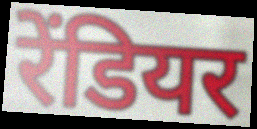
रेंडियर